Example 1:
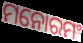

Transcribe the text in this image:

ମନୋରମଂ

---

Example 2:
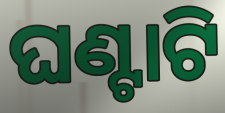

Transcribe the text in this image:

ଘଣ୍ଟାଟି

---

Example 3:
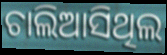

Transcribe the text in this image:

ଚାଲିଆସିଥିଲ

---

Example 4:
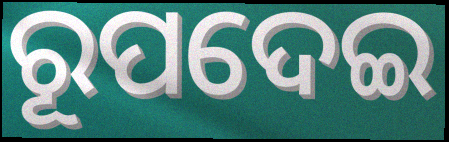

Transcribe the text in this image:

ରୂପଦେଇ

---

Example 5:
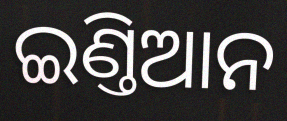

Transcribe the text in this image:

ଇଣ୍ତିଆନ